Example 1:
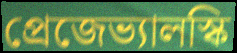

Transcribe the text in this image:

প্রেজেভ্যালস্কি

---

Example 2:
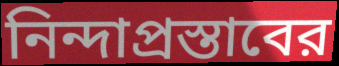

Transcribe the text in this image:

নিন্দাপ্রস্তাবের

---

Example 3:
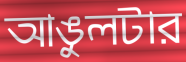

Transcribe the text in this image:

আঙুলটার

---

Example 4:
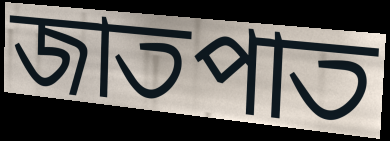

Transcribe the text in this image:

জাতপাত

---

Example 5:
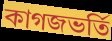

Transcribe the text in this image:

কাগজভর্তি